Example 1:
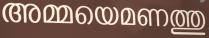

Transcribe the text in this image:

അമ്മയെമണത്തു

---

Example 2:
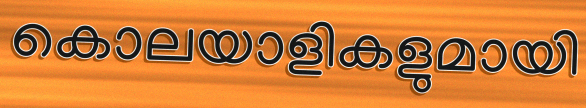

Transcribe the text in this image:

കൊലയാളികളുമായി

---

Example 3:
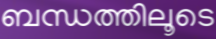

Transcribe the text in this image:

ബന്ധത്തിലൂടെ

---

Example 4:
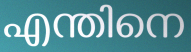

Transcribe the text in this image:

എന്തിനെ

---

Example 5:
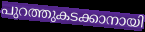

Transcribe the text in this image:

പുറത്തുകടക്കാനായി